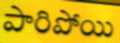
పారిపోయి